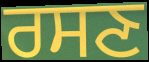
ਰਸਣ